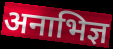
अनाभिज्ञ